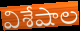
విశేషాల